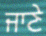
ਜਾਣੇ